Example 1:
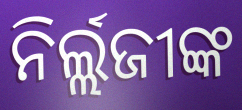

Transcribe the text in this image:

ନିର୍ଲ୍ଲଜୀଙ୍କ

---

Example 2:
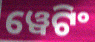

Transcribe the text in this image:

ୱେଟିଂ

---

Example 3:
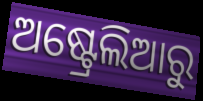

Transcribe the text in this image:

ଅଷ୍ଟ୍ରେଲିଆରୁ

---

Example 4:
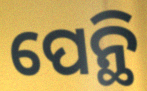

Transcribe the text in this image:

ପେନ୍ଥି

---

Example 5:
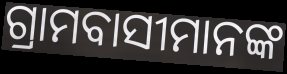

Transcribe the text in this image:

ଗ୍ରାମବାସୀମାନଙ୍କ